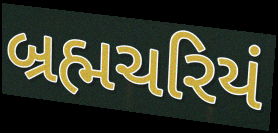
બ્રહ્મચરિયં